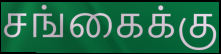
சங்கைக்கு